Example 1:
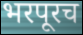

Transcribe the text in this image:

भरपूरच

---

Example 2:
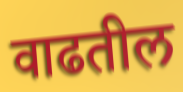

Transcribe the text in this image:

वाढतील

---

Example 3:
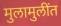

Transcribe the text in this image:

मुलामुलींत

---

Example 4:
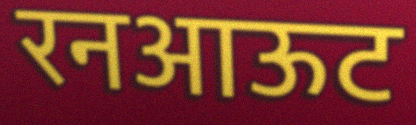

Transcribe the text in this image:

रनआऊट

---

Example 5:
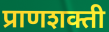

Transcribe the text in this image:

प्राणशक्ती